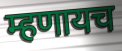
म्हणायच